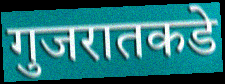
गुजरातकडे